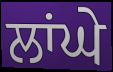
ਲਾਂਘੇ